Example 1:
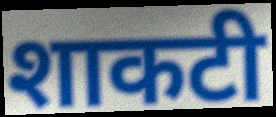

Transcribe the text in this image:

शाकटी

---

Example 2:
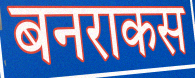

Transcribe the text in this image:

बनराकस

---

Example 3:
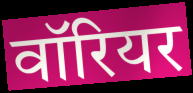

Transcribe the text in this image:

वॉरियर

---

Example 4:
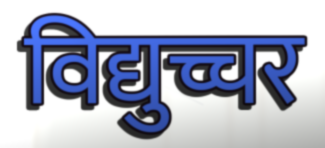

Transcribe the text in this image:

विद्युच्चर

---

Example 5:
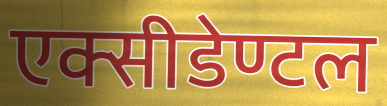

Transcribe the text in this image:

एक्सीडेण्टल